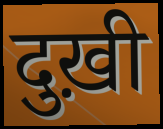
दुख़ी